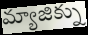
మ్యాజిక్ను